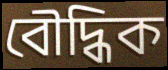
বৌদ্ধিক